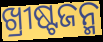
ଖ୍ରୀଷ୍ଟଜନ୍ମ